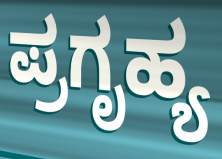
ಪ್ರಗೃಹ್ಯ